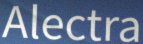
Alectra